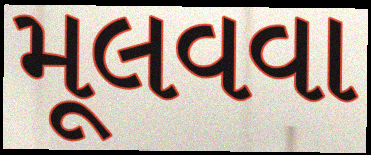
મૂલવવા